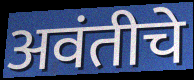
अवंतीचे